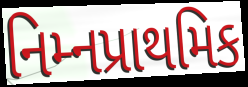
નિમ્નપ્રાથમિક